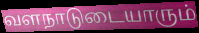
வளநாடுடையாரும்